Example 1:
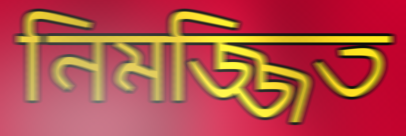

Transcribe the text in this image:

নিমজ্জিত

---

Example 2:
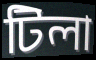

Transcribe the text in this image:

টিলা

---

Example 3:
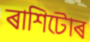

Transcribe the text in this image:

ৰাশিটোৰ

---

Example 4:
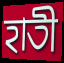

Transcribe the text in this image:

হাতী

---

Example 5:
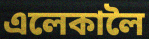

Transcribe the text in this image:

এলেকালৈ